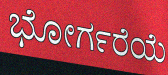
ಭೋರ್ಗರೆಯೆ